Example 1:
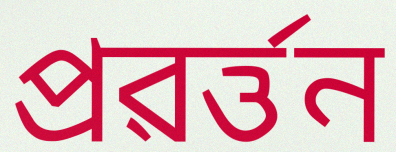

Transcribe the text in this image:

প্ৰৱৰ্ত্তন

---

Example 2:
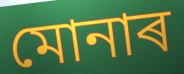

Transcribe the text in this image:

মোনাৰ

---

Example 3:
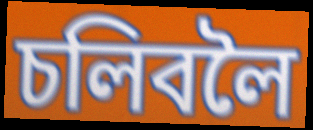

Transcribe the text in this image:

চলিবলৈ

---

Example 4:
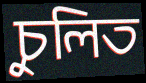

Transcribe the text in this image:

চুলিত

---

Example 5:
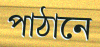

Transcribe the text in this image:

পাঠানে